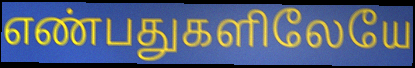
எண்பதுகளிலேயே